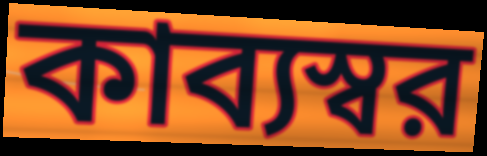
কাব্যস্বর